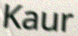
Kaur